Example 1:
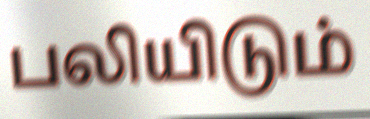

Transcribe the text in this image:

பலியிடும்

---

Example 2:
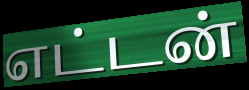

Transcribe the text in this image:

எட்டன்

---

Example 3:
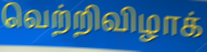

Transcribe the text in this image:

வெற்றிவிழாக்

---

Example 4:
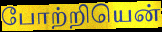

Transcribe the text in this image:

போற்றியென்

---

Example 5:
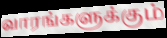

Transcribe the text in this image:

வாரங்களுக்கும்